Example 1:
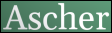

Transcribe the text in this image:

Ascher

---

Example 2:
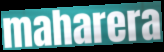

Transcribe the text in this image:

maharera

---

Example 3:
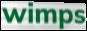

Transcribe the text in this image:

wimps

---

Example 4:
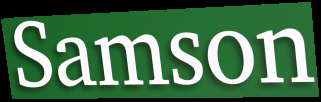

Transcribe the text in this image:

Samson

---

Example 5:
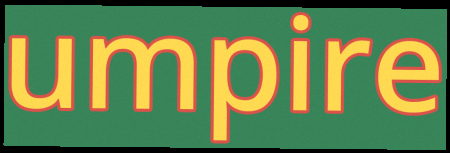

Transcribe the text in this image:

umpire